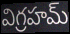
విగ్రహమ్